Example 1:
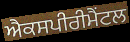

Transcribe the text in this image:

ਐਕਸਪੀਰੀਮੈਂਟਲ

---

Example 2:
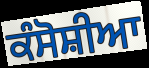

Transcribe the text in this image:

ਕੰਸੋਸ਼ੀਆ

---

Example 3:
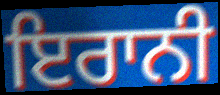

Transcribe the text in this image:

ਇਰਾਨੀ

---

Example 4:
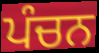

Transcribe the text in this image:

ਪੰਚਨ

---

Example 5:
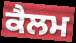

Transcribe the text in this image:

ਕੈਲਮ